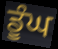
ਡੂੰਘ